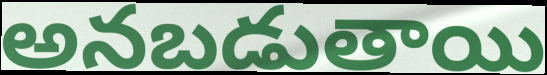
అనబడుతాయి